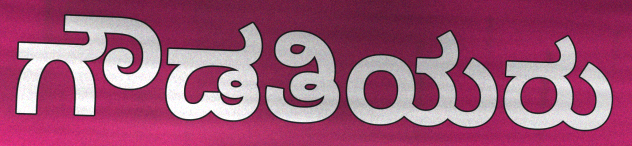
ಗೌಡತಿಯರು